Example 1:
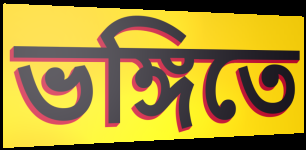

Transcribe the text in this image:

ভঙ্গিতে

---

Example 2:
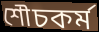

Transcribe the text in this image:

শৌচকর্ম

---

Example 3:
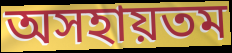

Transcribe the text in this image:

অসহায়তম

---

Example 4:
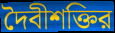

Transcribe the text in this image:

দৈবীশক্তির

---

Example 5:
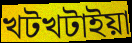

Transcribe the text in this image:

খটখটাইয়া